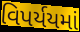
વિપર્યયમાં